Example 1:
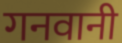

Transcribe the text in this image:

गनवानी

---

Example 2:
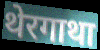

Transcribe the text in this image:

थेरगाथा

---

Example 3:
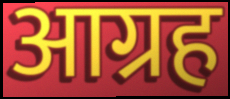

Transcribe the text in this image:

आग्रह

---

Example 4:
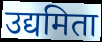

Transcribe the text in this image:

उद्यमिता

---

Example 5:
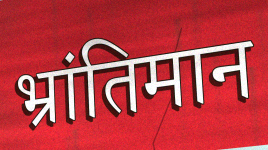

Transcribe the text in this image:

भ्रांतिमान